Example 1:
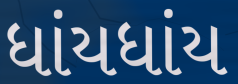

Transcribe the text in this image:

ધાંયધાંય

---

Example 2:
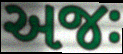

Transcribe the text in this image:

અજઃ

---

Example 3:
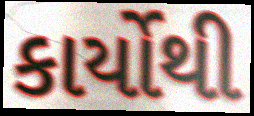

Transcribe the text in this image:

કાર્યોથી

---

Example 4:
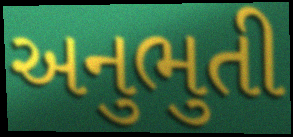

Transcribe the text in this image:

અનુભુતી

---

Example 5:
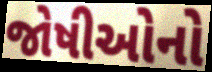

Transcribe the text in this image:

જોષીઓનો